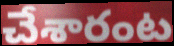
చేశారంట